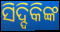
ସିଦ୍ଦିକିଙ୍କ